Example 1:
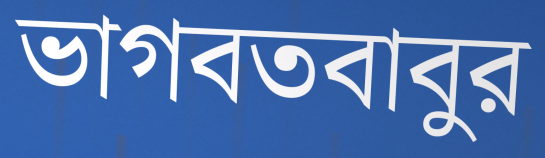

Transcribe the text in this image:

ভাগবতবাবুর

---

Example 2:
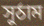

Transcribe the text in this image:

সুঠাম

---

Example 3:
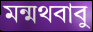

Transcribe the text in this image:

মন্মথবাবু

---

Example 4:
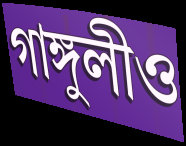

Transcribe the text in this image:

গাঙ্গুলীও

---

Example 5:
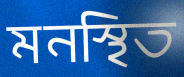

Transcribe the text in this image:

মনস্থিত